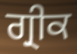
ਗ੍ਰੀਕ